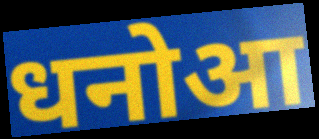
धनोआ